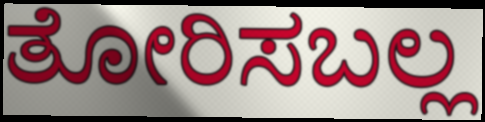
ತೋರಿಸಬಲ್ಲ